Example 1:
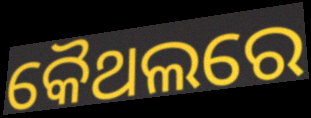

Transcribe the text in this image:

କୈଥଲରେ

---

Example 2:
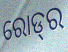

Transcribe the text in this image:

ରୋଡ୍‌ର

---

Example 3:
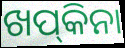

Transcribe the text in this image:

ଖପ୍‍କିନା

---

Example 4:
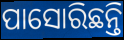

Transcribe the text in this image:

ପାସୋରିଛନ୍ତି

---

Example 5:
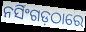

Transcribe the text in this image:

ନର୍ସିଂଗଡ଼ଠାରେ